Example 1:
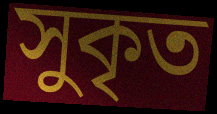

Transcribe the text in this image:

সুকৃত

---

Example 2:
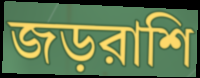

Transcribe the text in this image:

জড়রাশি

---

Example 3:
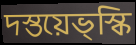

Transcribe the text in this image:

দস্তয়েভ্স্কি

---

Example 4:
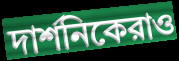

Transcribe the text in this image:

দার্শনিকেরাও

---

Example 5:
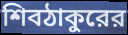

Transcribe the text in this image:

শিবঠাকুরের